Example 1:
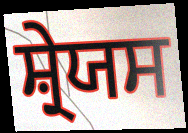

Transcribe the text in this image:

ਸ਼੍ਰੇਯਸ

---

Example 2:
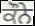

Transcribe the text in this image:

ਕੌਨੇ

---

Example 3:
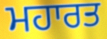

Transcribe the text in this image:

ਮਹਾਰਤ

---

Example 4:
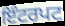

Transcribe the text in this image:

ਇੰਟਰਪਟ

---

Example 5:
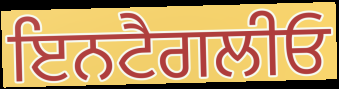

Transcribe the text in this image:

ਇਨਟੈਗਲੀਓ